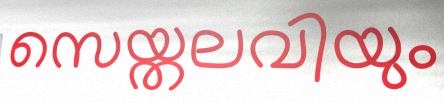
സെയ്തലവിയും